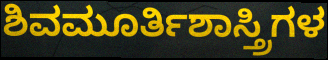
ಶಿವಮೂರ್ತಿಶಾಸ್ತ್ರಿಗಳ